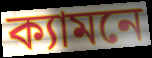
ক্যামনে